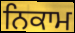
ਨਿਕਾਮ